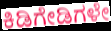
ಕಿಡಿಗೇಡಿಗಳೇ